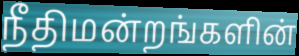
நீதிமன்றங்களின்